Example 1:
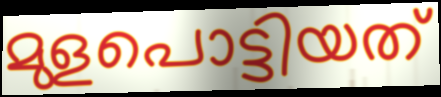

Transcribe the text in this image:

മുളപൊട്ടിയത്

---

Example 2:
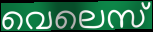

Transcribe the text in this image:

വെലെസ്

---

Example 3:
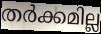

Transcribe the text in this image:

തർക്കമില്ല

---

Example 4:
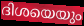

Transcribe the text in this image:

ദിശയെയും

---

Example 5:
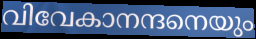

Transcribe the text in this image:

വിവേകാനന്ദനെയും